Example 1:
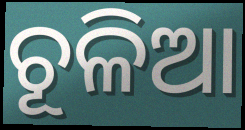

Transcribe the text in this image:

ଚୂଳିଆ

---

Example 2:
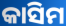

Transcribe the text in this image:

କାସିମ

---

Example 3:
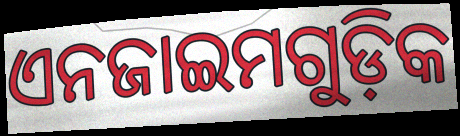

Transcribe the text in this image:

ଏନଜାଇମଗୁଡ଼ିକ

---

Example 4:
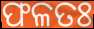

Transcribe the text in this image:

ଫଳତଃ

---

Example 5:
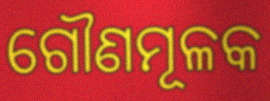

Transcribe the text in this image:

ଗୌଣମୂଳକ